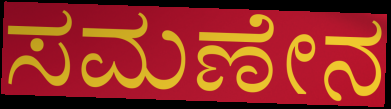
ಸಮಣೇನ